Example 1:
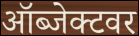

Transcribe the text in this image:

ऑब्जेक्टवर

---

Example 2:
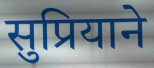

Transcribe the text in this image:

सुप्रियाने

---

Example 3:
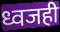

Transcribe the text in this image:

ध्वजही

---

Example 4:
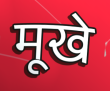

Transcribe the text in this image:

मूखे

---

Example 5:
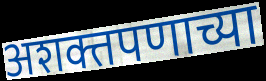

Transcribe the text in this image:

अशक्तपणाच्या